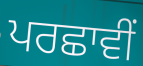
ਪਰਛਾਵੀਂ